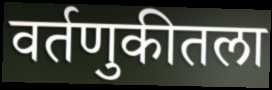
वर्तणुकीतला